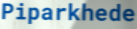
Piparkhede